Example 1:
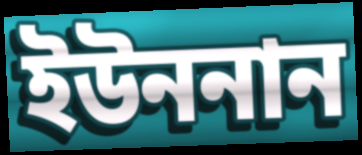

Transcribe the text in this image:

ইউননান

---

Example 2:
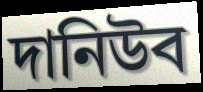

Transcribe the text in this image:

দানিউব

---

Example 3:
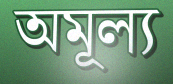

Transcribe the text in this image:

অমূল্য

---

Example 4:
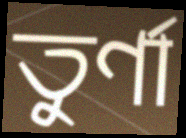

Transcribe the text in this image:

তুর্ণা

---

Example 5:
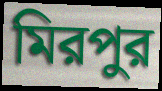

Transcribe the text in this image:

মিরপুর